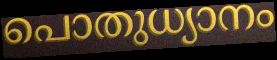
പൊതുധ്യാനം